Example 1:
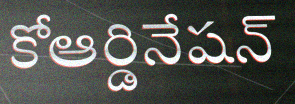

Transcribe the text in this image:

కోఆర్డినేషన్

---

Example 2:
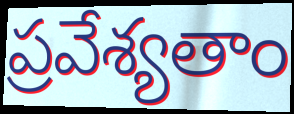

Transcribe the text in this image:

ప్రవేశ్యతాం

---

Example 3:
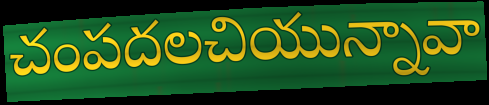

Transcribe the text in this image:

చంపదలచియున్నావా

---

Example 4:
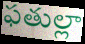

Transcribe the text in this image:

ఫతుల్లా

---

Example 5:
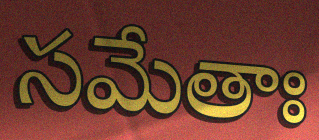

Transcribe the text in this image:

సమేతాః